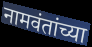
नामवंतांच्या